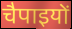
चैपाइयों